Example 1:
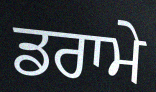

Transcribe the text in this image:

ਡਰਾਮੇ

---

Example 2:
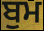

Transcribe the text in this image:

ਬੁਮ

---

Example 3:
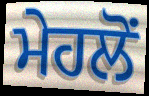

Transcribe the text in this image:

ਮੇਹਲੋਂ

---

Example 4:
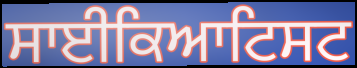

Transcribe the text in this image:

ਸਾਈਕਿਆਟਿਸਟ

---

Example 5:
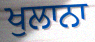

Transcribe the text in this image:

ਖੁਲਾਨਾ